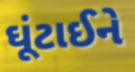
ઘૂંટાઈને